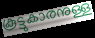
കൂട്ടുകാരനുള്ള